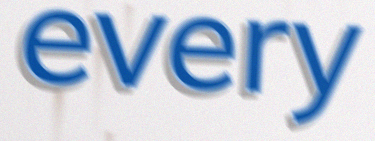
every